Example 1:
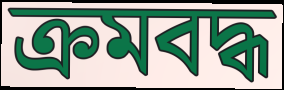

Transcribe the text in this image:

ক্ৰমবদ্ধ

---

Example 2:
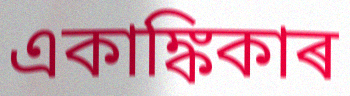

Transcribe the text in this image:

একাঙ্কিকাৰ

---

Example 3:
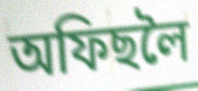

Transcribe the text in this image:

অফিছলৈ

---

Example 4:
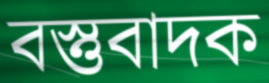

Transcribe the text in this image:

বস্তুবাদক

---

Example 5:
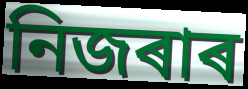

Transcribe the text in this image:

নিজৰাৰ